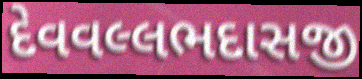
દેવવલ્લભદાસજી